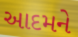
આદમને